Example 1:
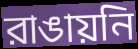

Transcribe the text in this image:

রাঙায়নি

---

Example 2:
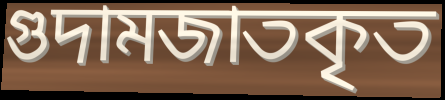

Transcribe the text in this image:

গুদামজাতকৃত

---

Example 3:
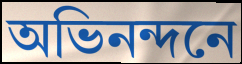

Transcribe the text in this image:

অভিনন্দনে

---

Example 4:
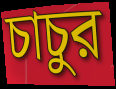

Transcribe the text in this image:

চাচুর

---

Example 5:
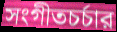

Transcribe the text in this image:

সংগীতচর্চার